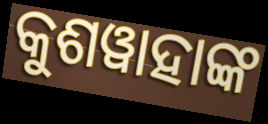
କୁଶୱାହାଙ୍କ